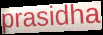
prasidha